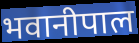
भवानीपाल